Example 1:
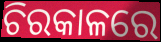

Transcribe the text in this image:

ଚିରକାଳରେ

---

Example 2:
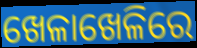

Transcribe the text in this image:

ଖେଳାଖେଳିରେ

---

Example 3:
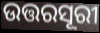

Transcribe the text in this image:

ଉତ୍ତରସୂରୀ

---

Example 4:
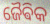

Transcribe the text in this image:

ଜୈଵିକ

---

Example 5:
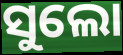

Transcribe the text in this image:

ସୁଲୋ